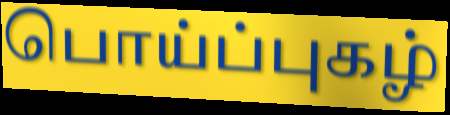
பொய்ப்புகழ்